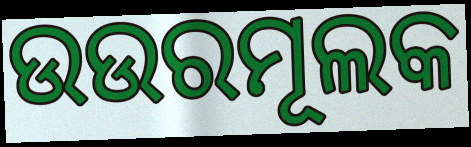
ଉଉରମୂଲକ